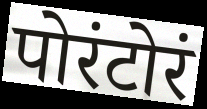
पोरंटोरं